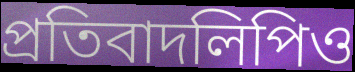
প্রতিবাদলিপিও